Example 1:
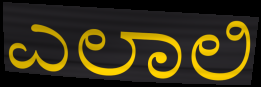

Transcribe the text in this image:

ಎಲಾಲಿ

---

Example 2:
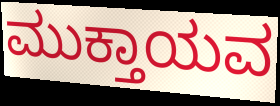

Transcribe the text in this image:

ಮುಕ್ತಾಯವ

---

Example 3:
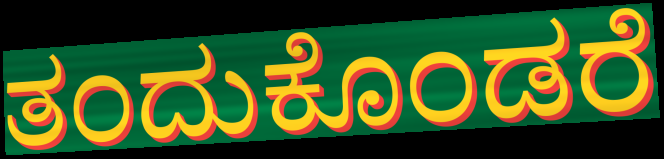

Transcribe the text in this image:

ತಂದುಕೊಂಡರೆ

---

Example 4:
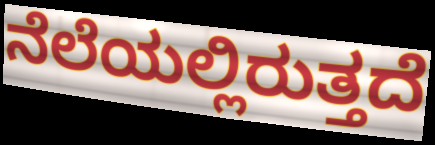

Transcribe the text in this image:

ನೆಲೆಯಲ್ಲಿರುತ್ತದೆ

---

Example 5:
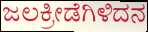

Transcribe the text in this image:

ಜಲಕ್ರೀಡೆಗಿಳಿದನ